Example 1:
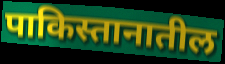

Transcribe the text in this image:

पाकिस्तानातील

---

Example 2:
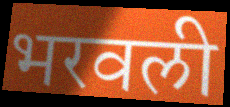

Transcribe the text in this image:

भरवली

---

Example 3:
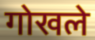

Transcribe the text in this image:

गोखले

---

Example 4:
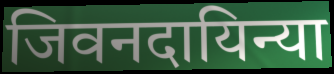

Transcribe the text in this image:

जिवनदायिन्या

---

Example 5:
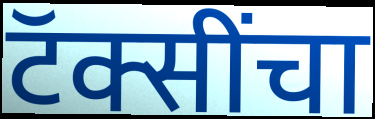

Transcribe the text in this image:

टॅक्सींचा